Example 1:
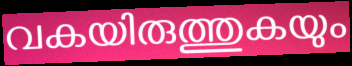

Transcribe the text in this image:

വകയിരുത്തുകയും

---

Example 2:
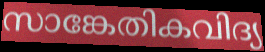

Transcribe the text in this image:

സാങ്കേതികവിദ്യ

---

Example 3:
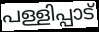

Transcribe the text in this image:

പള്ളിപ്പാട്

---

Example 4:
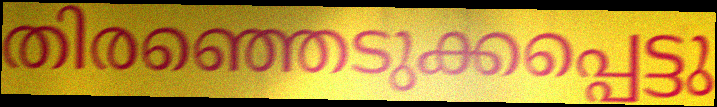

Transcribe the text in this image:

തിരഞ്ഞെടുക്കപ്പെട്ടു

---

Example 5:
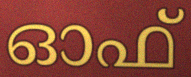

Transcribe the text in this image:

ഓഫ്